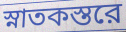
স্নাতকস্তরে